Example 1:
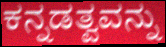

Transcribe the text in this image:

ಕನ್ನಡತ್ವವನ್ನು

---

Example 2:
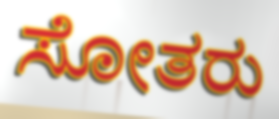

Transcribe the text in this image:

ಸೋತರು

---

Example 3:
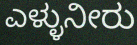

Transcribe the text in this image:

ಎಳ್ಳುನೀರು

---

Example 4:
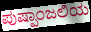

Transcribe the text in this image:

ಪುಷ್ಪಾಂಜಲಿಯ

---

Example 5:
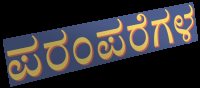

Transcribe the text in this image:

ಪರಂಪರೆಗಳ